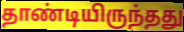
தாண்டியிருந்தது